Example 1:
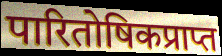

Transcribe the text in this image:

पारितोषिकप्राप्त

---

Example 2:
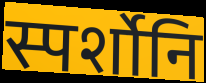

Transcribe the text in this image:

स्पर्शोनि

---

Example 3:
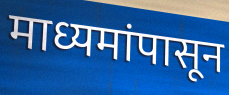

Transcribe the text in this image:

माध्यमांपासून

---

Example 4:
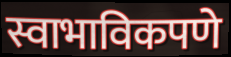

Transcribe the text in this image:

स्वाभाविकपणे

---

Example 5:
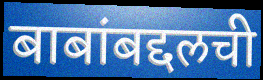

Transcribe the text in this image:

बाबांबद्दलची